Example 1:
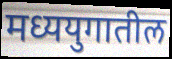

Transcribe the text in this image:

मध्ययुगातील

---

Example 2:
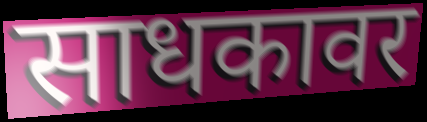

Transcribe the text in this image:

साधकावर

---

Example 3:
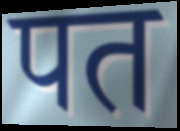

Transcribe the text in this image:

पत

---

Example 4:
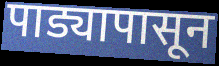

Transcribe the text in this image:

पाड्यापासून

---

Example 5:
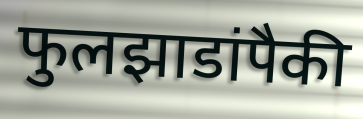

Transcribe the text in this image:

फुलझाडांपैकी